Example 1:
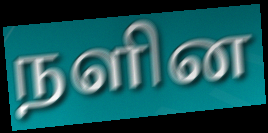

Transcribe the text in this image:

நளின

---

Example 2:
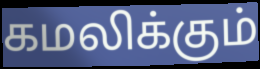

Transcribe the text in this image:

கமலிக்கும்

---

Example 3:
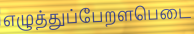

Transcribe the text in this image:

எழுத்துப்பேறளபெடை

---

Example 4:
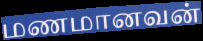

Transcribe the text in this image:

மணமானவன்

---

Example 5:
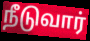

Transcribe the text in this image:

நீடுவார்